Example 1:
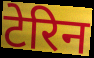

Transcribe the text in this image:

टेरिन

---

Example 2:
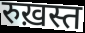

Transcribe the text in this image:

रुख़स्त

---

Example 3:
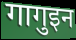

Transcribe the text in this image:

गागुइन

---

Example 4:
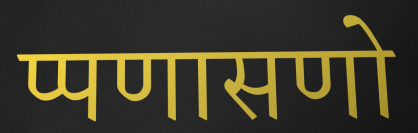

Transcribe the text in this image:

प्पणासणो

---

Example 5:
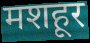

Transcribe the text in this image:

मशहूर